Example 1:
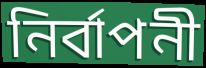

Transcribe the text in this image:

নির্বাপনী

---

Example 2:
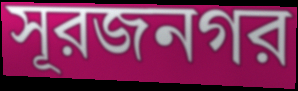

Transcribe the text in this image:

সূরজনগর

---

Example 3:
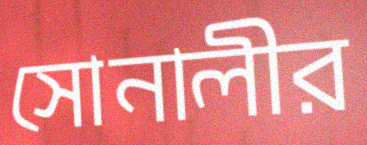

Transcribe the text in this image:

সোনালীর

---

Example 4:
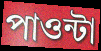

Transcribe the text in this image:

পাওন্টা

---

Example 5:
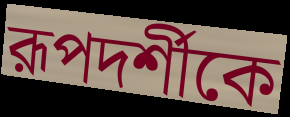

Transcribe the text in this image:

রূপদর্শীকে